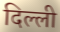
दिल्‍ली